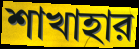
শাখাহার